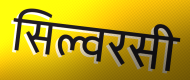
सिल्वरसी